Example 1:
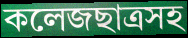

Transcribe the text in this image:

কলেজছাত্রসহ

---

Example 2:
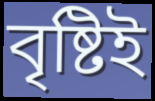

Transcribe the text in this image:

বৃষ্টিই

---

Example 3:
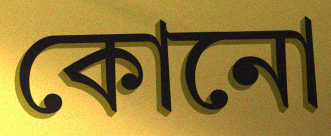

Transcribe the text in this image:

কোনো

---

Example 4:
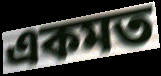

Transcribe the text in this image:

একমত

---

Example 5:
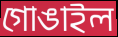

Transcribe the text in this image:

গোঙাইল